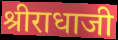
श्रीराधाजी